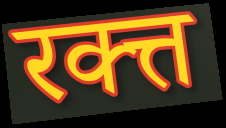
रक्त्त